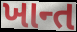
ખાન્ત